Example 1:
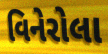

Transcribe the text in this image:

વિનેરોલા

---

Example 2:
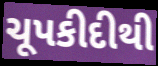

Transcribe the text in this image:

ચૂપકીદીથી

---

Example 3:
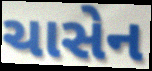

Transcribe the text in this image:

ચાસેન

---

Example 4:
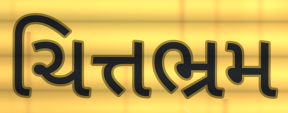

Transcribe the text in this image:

ચિત્તભ્રમ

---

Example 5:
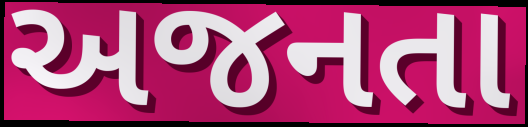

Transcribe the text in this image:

અજનતા